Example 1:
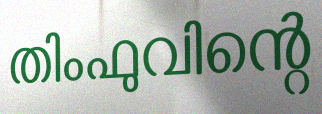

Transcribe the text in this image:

തിംഫുവിന്റെ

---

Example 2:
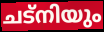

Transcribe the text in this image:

ചട്നിയും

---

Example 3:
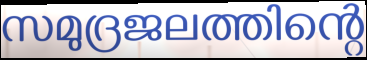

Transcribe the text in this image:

സമുദ്രജലത്തിന്റെ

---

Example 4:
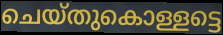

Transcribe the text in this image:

ചെയ്തുകൊള്ളട്ടെ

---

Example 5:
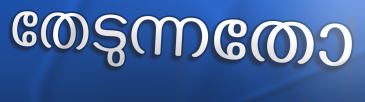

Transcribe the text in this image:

തേടുന്നതോ